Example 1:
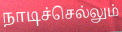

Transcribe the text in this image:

நாடிச்செல்லும்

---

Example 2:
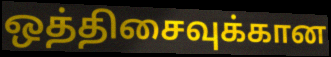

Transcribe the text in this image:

ஒத்திசைவுக்கான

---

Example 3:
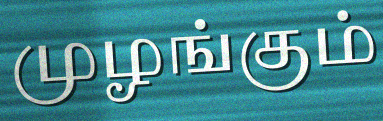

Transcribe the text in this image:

முழங்கும்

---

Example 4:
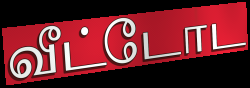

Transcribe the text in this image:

வீட்டோட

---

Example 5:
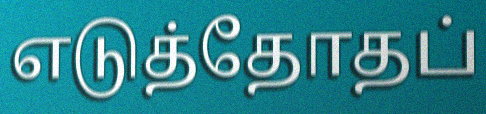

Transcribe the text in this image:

எடுத்தோதப்